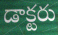
డాక్టరు